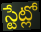
స్టేట్లో